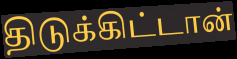
திடுக்கிட்டான்